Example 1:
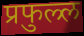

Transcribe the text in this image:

प्रफुल्ल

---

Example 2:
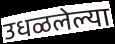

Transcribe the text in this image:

उधळलेल्या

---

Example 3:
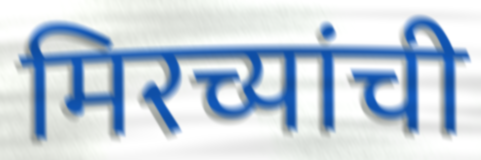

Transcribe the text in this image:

मिरच्यांची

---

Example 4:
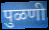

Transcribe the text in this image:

पुळणी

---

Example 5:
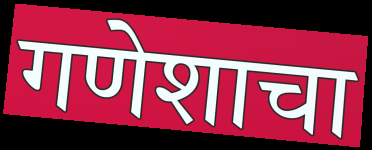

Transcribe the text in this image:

गणेशाचा